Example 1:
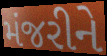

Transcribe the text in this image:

મંજરીને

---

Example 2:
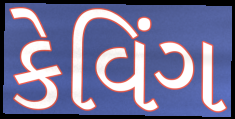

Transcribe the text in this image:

કેવિંગ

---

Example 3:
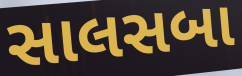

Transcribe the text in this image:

સાલસબા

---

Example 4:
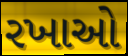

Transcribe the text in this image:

રખાઓ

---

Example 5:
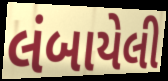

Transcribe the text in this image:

લંબાયેલી